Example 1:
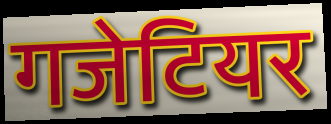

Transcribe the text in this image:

गजेटियर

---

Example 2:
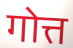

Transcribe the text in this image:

गोत्त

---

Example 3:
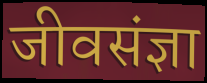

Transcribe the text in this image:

जीवसंज्ञा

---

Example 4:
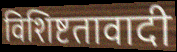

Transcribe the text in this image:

विशिष्टतावादी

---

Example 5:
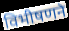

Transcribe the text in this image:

विभीषणने